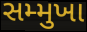
સમ્મુખા